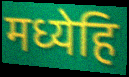
मध्येहि